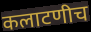
कलाटणीच